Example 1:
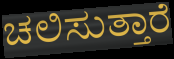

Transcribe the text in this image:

ಚಲಿಸುತ್ತಾರೆ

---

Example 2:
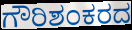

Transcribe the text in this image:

ಗೌರಿಶಂಕರದ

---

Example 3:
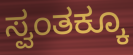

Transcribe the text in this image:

ಸ್ವಂತಕ್ಕೂ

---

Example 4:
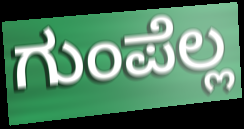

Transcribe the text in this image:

ಗುಂಪೆಲ್ಲ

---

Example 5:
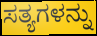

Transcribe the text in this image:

ಸತ್ಯಗಳನ್ನು